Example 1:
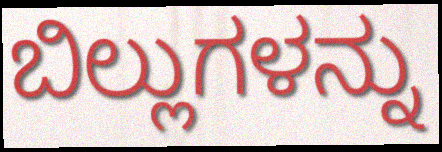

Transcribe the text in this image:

ಬಿಲ್ಲುಗಳನ್ನು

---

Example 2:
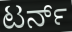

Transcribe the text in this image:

ಟರ್ನ್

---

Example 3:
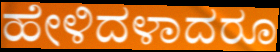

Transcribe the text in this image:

ಹೇಳಿದಳಾದರೂ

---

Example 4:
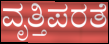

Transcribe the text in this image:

ವೃತ್ತಿಪರತೆ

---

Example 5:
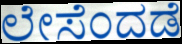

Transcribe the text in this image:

ಲೇಸೆಂದಡೆ